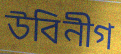
উবিনীগ